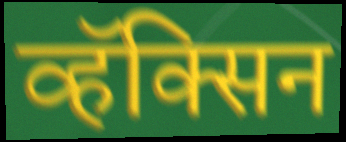
व्हॅक्सिन